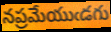
నప్రమేయుఁడగు